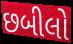
છબીલો